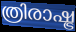
ത്രിരാഷ്ട്ര